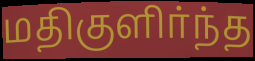
மதிகுளிர்ந்த